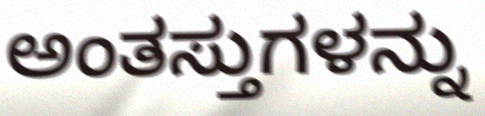
ಅಂತಸ್ತುಗಳನ್ನು